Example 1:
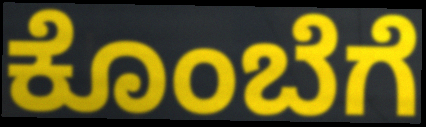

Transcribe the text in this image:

ಕೊಂಬೆಗೆ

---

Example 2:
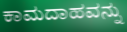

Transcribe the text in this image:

ಕಾಮದಾಹವನ್ನು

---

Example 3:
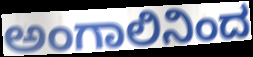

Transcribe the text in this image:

ಅಂಗಾಲಿನಿಂದ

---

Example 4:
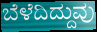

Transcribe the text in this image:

ಬೆಳೆದಿದ್ದುವು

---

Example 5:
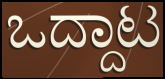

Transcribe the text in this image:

ಒದ್ದಾಟ